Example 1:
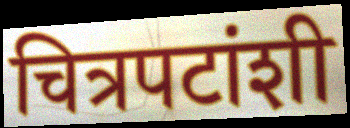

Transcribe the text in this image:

चित्रपटांशी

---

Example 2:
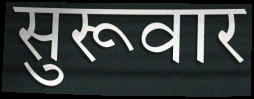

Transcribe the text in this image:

सुरूवार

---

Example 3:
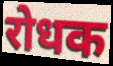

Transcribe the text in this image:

रोधक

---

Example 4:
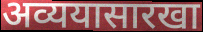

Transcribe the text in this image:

अव्ययासारखा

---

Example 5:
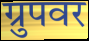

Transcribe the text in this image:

ग्रुपवर